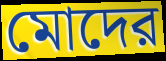
মোদের